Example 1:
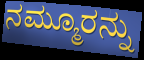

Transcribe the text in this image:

ನಮ್ಮೂರನ್ನು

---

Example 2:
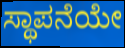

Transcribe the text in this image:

ಸ್ಥಾಪನೆಯೇ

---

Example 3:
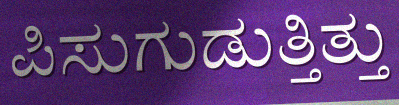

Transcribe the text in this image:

ಪಿಸುಗುಡುತ್ತಿತ್ತು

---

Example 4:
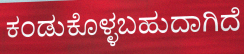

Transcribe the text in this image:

ಕಂಡುಕೊಳ್ಳಬಹುದಾಗಿದೆ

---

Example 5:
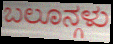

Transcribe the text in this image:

ಬಲೂನ್ಗಳು